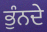
ਭੁੰਨਦੇ